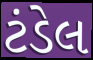
ટંડેલ